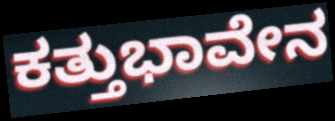
ಕತ್ತುಭಾವೇನ